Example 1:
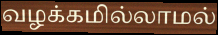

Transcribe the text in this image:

வழக்கமில்லாமல்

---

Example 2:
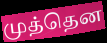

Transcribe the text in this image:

முத்தென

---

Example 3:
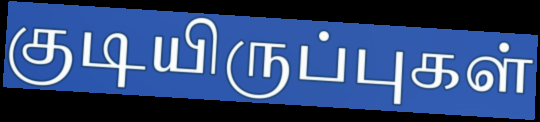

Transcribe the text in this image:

குடியிருப்புகள்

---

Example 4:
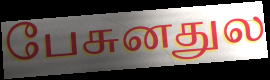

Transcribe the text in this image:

பேசுனதுல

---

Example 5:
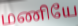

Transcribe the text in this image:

மணியே